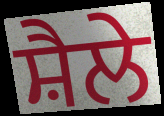
ਸ਼ੈਲੇ